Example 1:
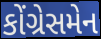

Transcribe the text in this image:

કોંગ્રેસમેન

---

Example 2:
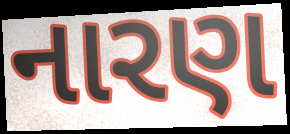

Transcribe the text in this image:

નારણ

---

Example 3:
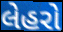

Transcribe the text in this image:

લેહરો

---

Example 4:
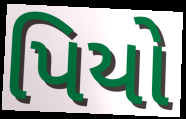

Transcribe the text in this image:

પિયો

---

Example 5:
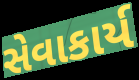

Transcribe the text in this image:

સેવાકાર્ય